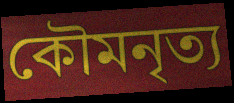
কৌমনৃত্য